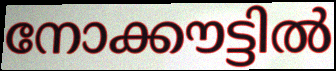
നോക്കൗട്ടിൽ